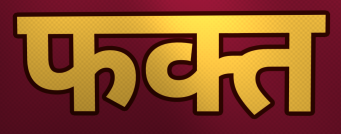
फक्त